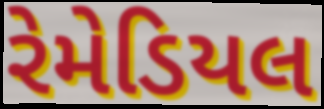
રેમેડિયલ